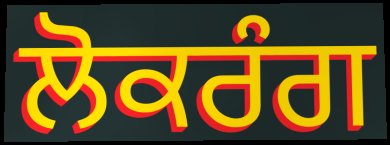
ਲੋਕਰੰਗ